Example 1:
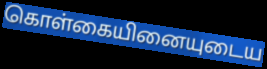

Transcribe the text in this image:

கொள்கையினையுடைய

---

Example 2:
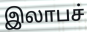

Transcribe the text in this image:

இலாபச்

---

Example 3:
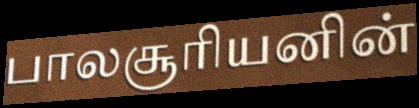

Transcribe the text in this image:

பாலசூரியனின்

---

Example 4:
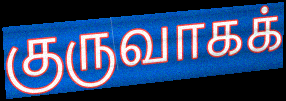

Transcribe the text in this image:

குருவாகக்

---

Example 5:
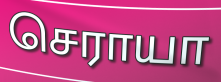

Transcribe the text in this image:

செராயா